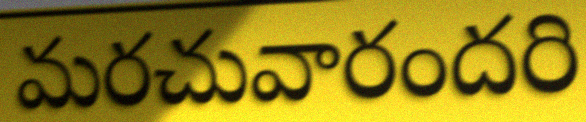
మరచువారందరి